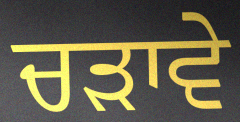
ਚੜਾਵੇ